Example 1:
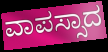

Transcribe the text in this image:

ವಾಪಸ್ಸಾದ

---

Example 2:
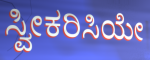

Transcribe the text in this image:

ಸ್ವೀಕರಿಸಿಯೇ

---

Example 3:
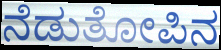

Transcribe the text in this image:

ನೆಡುತೋಪಿನ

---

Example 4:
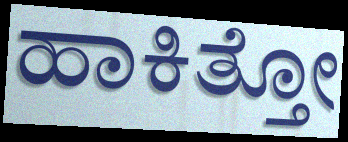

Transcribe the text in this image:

ಹಾಕಿತ್ತೋ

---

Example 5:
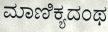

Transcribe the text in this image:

ಮಾಣಿಕ್ಯದಂಥ